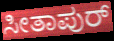
ಸೀತಾಪುರ್